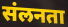
संलनता